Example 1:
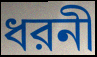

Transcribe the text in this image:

ধরনী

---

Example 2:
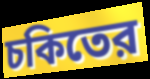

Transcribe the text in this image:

চকিতের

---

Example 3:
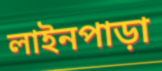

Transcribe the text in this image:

লাইনপাড়া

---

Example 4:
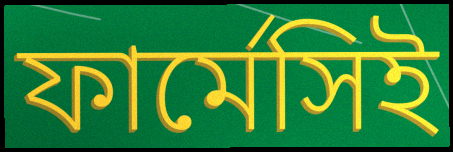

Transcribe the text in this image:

ফার্মেসিই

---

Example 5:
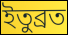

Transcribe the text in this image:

ইতুব্রত